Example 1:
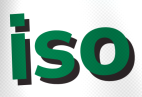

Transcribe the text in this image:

iso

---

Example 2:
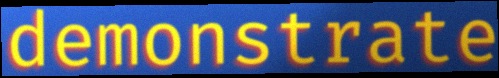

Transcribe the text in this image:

demonstrate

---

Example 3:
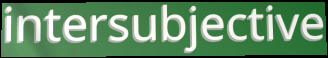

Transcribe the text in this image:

intersubjective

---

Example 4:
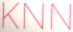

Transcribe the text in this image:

KNN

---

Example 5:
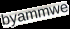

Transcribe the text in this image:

byammwe